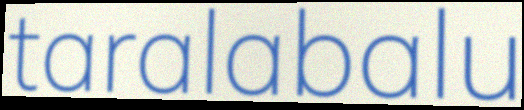
taralabalu